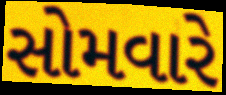
સોમવારે